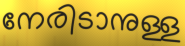
നേരിടാനുള്ള